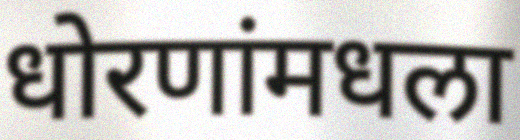
धोरणांमधला